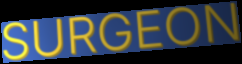
SURGEON